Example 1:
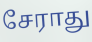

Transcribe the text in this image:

சேராது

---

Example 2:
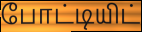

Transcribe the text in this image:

போட்டியிட்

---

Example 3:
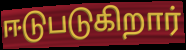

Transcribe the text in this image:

ஈடுபடுகிறார்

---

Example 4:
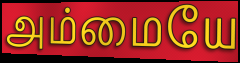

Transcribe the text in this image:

அம்மையே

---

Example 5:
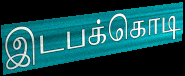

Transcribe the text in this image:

இடபக்கொடி